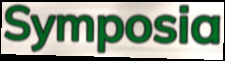
Symposia